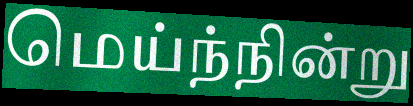
மெய்ந்நின்று